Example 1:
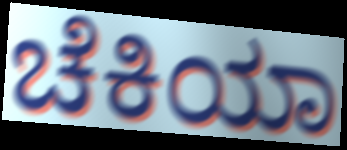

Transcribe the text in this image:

ಚೆಕಿಯಾ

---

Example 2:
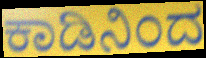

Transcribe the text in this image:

ಕಾಡಿನಿಂದ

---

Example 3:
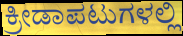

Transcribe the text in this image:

ಕ್ರೀಡಾಪಟುಗಳಲ್ಲಿ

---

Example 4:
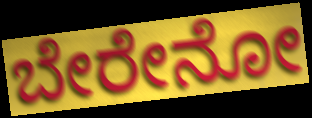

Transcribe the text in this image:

ಬೇರೇನೋ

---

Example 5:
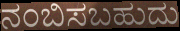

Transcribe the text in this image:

ನಂಬಿಸಬಹುದು